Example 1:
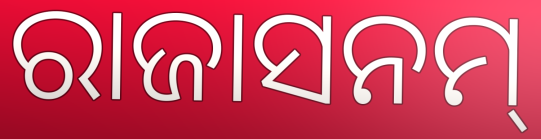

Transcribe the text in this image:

ରାଜାସନମ୍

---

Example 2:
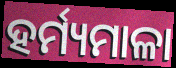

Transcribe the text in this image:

ହର୍ମ୍ୟମାଳା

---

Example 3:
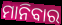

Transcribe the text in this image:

ମାନିବାର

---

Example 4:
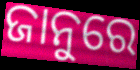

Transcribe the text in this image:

ଜାନୁରେ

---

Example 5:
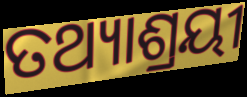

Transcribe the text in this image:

ତଥ୍ୟାଶ୍ରୟୀ